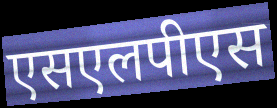
एसएलपीएस